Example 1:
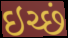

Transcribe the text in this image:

ઇચ્છં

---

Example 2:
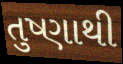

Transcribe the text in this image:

તુષ્ણાથી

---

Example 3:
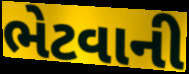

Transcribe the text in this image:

ભેટવાની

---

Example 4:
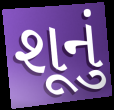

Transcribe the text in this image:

શૂનું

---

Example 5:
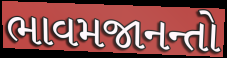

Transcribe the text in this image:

ભાવમજાનન્તો